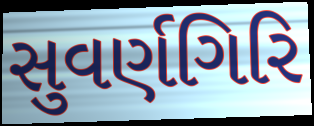
સુવર્ણગિરિ